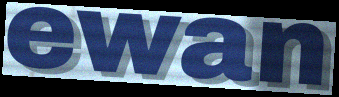
ewan